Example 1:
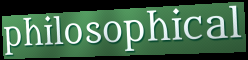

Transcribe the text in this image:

philosophical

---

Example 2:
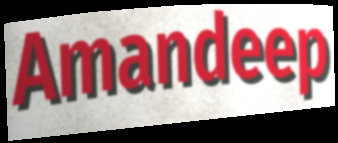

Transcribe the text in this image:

Amandeep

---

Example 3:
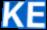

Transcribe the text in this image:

KE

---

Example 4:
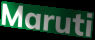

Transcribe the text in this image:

Maruti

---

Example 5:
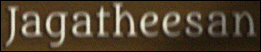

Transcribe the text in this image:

Jagatheesan